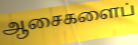
ஆசைகளைப்